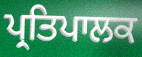
ਪ੍ਰਤਿਪਾਲਕ